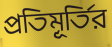
প্রতিমূর্তির